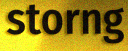
storng